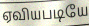
ஏவியபடியே